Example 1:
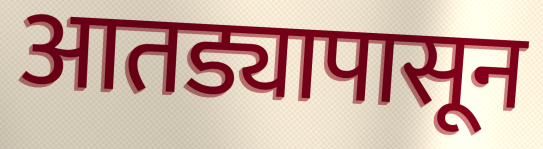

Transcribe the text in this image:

आतड्यापासून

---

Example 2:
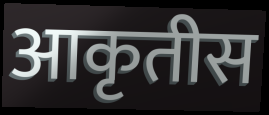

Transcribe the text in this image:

आकृतीस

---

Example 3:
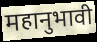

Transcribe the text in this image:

महानुभावी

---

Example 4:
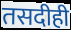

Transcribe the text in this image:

तसदीही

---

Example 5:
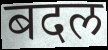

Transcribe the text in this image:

बदल